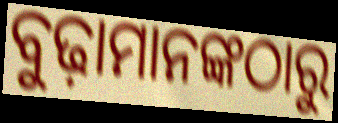
ବୁଢ଼ାମାନଙ୍କଠାରୁ